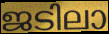
ജടിലാ